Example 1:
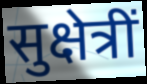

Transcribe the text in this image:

सुक्षेत्रीं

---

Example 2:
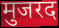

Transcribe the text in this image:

मुजरद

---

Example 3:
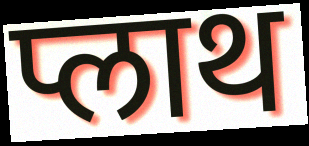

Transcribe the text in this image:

प्लाथ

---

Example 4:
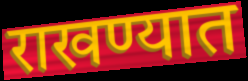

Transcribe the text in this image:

राखण्यात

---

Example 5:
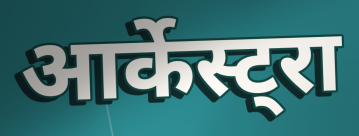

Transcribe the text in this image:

आर्केस्ट्रा